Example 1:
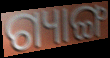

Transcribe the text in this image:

ଗ୍ୟାଙ୍ଗ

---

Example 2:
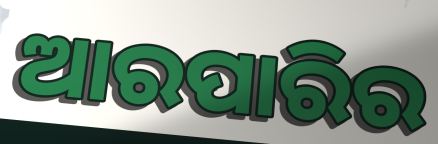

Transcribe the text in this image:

ଆରପାରିର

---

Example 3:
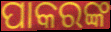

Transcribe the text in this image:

ପାକରଙ୍କ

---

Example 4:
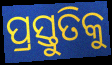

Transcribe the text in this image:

ପ୍ରସ୍ତୁତିକୁ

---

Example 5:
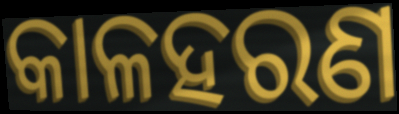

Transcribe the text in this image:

କାଳହରଣ